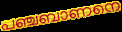
പഞ്ചബാണനെ